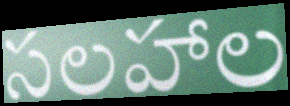
సలహాల